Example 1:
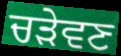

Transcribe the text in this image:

ਚੜੇਵਣ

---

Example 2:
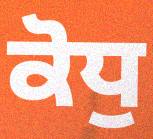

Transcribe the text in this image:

ਕੋਧੁ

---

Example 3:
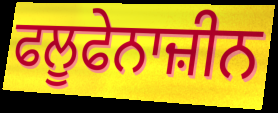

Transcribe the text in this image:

ਫਲੂਫੇਨਾਜ਼ੀਨ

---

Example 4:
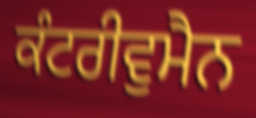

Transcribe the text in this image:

ਕੰਟਰੀਵੁਮੈਨ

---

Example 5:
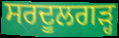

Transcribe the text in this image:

ਸਰਦੂਲਗੜ੍ਹ